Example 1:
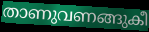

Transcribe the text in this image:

താണുവണങ്ങുകീ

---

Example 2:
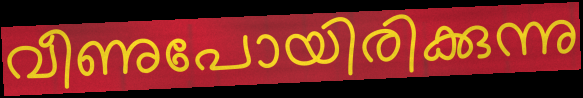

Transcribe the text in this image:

വീണുപോയിരിക്കുന്നു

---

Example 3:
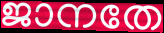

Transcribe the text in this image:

ജാനതേ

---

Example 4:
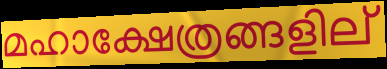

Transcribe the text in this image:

മഹാക്ഷേത്രങ്ങളില്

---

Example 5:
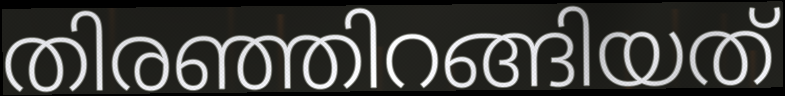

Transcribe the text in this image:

തിരഞ്ഞിറങ്ങിയത്